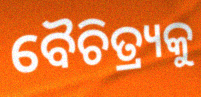
ବୈଚିତ୍ର୍ୟକୁ